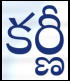
కర్ణీ